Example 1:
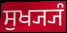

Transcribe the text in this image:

ਸੁਖ੍ਯ੍ਯੰ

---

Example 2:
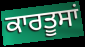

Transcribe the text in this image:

ਕਾਰਤੂਸਾਂ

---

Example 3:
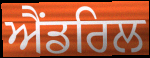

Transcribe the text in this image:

ਐਂਡਰਿਲ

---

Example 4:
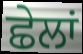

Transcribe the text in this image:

ਛੇਲਾਂ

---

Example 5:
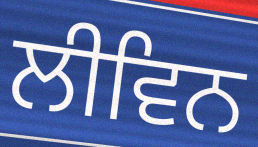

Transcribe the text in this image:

ਲੀਵਿਨ